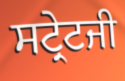
ਸਟ੍ਰੇਟਜੀ